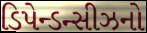
ડિપેન્ડન્સીઝનો